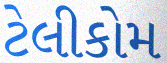
ટેલીકોમ